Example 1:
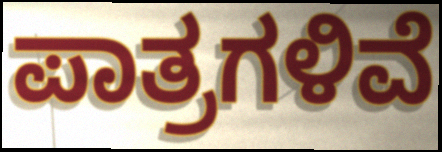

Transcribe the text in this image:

ಪಾತ್ರಗಳಿವೆ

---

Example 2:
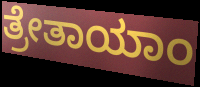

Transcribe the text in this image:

ತ್ರೇತಾಯಾಂ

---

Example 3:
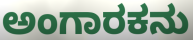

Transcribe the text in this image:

ಅಂಗಾರಕನು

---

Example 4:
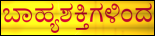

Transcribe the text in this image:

ಬಾಹ್ಯಶಕ್ತಿಗಳಿಂದ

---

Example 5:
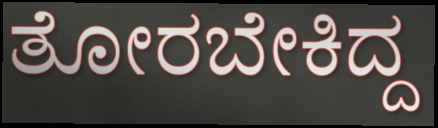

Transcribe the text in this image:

ತೋರಬೇಕಿದ್ದ